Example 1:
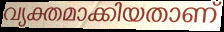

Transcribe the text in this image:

വ്യക്തമാക്കിയതാണ്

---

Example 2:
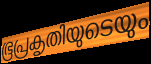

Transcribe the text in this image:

ഭൂപ്രകൃതിയുടെയും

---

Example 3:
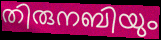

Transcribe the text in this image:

തിരുനബിയും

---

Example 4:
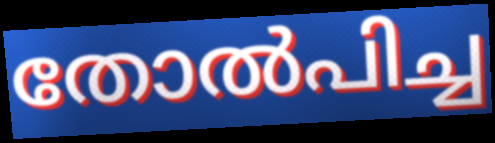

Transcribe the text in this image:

തോൽപിച്ച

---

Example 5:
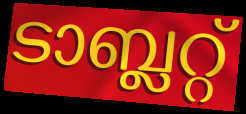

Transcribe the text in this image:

ടാബ്ലറ്റ്